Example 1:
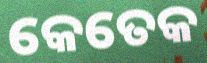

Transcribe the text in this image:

କେତେକ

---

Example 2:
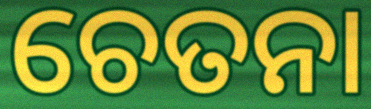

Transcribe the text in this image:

ଚେତନା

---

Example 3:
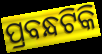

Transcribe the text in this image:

ପ୍ରବନ୍ଧଟିକି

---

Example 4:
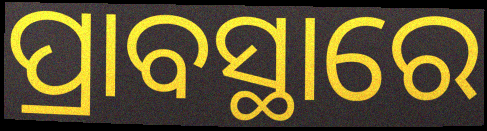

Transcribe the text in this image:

ପ୍ରାବସ୍ଥାରେ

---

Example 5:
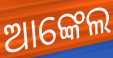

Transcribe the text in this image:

ଆଙ୍କେଲ